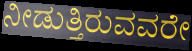
ನೀಡುತ್ತಿರುವವರೇ